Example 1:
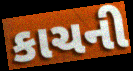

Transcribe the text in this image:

કાચની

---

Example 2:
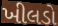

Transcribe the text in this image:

ખીલડો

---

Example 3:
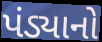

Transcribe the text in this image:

પંડ્યાનો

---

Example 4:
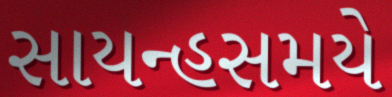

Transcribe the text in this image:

સાયન્હસમયે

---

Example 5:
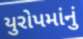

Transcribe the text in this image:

યુરોપમાંનું